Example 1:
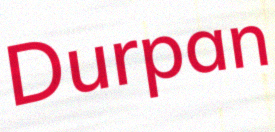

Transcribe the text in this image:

Durpan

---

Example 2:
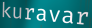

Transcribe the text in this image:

kuravar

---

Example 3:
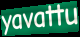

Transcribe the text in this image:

yavattu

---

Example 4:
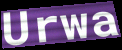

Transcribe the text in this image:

Urwa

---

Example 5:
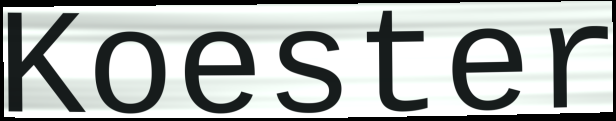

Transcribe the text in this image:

Koester